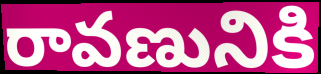
రావణునికి